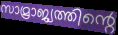
സാമ്രാജ്യത്തിന്റെ